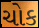
ચોક